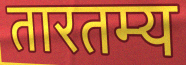
तारतम्य